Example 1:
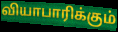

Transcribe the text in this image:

வியாபாரிக்கும்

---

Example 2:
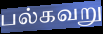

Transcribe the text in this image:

பல்கவறு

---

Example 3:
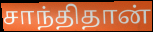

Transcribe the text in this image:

சாந்திதான்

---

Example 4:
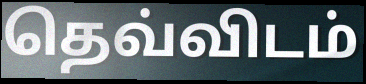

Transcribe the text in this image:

தெவ்விடம்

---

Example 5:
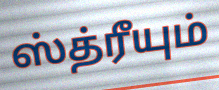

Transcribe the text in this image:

ஸ்த்ரீயும்